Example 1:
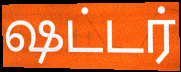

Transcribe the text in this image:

ஷட்டர்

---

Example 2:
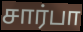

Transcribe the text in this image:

சார்பா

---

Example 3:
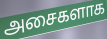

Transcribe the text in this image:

அசைகளாக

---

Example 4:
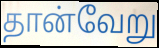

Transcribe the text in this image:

தான்வேறு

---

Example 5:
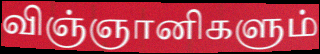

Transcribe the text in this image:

விஞ்ஞானிகளும்